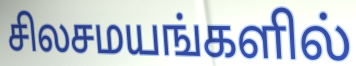
சிலசமயங்களில்